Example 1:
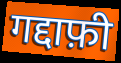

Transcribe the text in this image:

गद्दाफ़ी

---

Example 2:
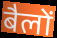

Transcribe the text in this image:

बैलों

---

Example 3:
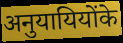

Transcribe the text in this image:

अनुयायियोंके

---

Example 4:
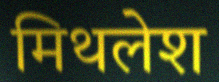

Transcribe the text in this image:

मिथलेश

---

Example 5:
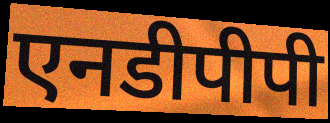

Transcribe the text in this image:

एनडीपीपी